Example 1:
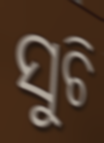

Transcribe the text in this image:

ସୁଚି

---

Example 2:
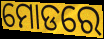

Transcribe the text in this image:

ମୋଡରେ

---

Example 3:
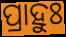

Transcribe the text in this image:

ପ୍ରାହୁଃ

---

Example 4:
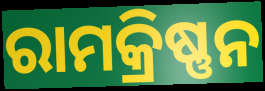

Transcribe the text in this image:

ରାମକ୍ରିଷ୍ଣନ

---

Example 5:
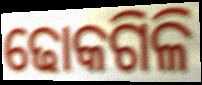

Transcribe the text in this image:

ଢୋକଗିଳି